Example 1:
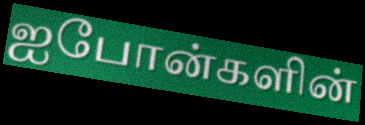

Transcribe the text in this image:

ஐபோன்களின்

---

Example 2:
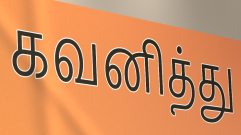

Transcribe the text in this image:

கவனித்து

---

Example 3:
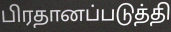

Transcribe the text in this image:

பிரதானப்படுத்தி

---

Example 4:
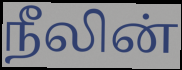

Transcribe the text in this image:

நீலின்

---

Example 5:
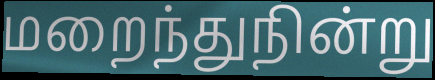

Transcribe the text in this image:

மறைந்துநின்று